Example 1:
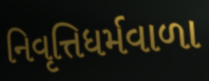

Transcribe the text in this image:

નિવૃત્તિધર્મવાળા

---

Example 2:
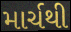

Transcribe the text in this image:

માર્ચથી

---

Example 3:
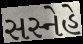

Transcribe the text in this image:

સસ્નેહે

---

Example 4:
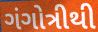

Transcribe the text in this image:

ગંગોત્રીથી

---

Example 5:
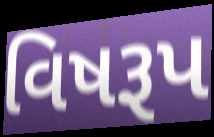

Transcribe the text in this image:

વિષરૂપ